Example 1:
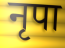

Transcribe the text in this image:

नृपा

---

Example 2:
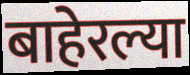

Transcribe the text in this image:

बाहेरल्या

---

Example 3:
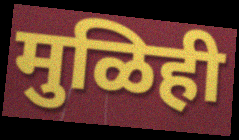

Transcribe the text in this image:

मुळिही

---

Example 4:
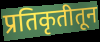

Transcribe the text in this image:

प्रतिकृतीतून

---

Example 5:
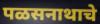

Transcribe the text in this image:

पळसनाथाचे